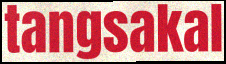
tangsakal